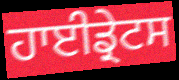
ਹਾਈਡ੍ਰੇਟਸ